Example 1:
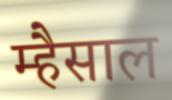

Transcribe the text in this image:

म्हैसाल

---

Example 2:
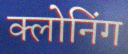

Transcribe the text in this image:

क्‍लोनिंग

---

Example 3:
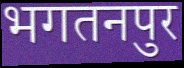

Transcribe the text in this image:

भगतनपुर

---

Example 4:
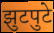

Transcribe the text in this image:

झुटपुटे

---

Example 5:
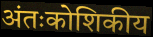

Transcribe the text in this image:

अंतःकोशिकीय